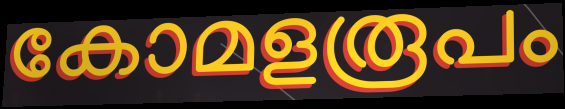
കോമളരൂപം